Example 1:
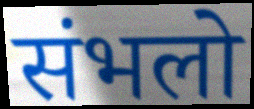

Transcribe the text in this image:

संभलो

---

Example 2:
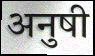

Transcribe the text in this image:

अनुषी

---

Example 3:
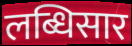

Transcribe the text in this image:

लब्धिसार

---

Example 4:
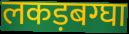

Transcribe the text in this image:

लकड़बग्घा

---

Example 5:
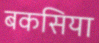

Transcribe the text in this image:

बकसिया